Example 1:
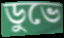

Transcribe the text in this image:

ডুভে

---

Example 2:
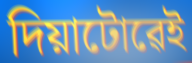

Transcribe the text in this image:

দিয়াটোৱেই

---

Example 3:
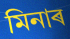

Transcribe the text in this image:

মিনাৰ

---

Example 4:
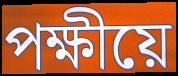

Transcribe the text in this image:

পক্ষীয়ে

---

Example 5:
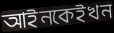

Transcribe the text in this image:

আইনকেইখন